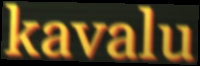
kavalu